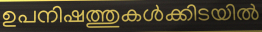
ഉപനിഷത്തുകൾക്കിടയിൽ